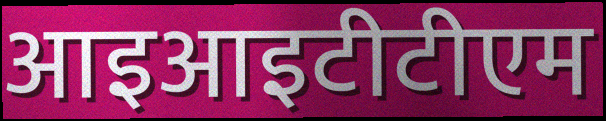
आइआइटीटीएम